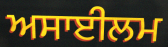
ਅਸਾਈਲਮ